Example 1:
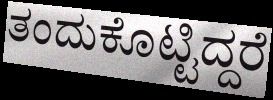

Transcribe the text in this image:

ತಂದುಕೊಟ್ಟಿದ್ದರೆ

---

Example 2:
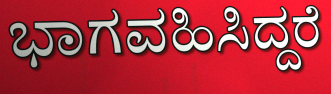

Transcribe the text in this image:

ಭಾಗವಹಿಸಿದ್ದರೆ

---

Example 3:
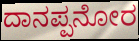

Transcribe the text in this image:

ದಾನಪ್ಪನೋರ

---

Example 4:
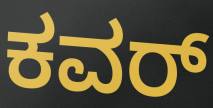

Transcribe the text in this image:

ಕವರ್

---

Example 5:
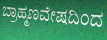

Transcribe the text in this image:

ಬ್ರಾಹ್ಮಣವೇಷದಿಂದ